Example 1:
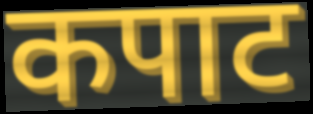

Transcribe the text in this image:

कपाट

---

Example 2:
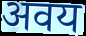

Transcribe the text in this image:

अवय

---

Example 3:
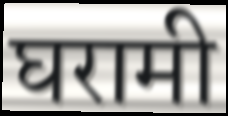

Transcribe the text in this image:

घरामी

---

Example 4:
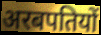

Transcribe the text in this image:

अरबपतियों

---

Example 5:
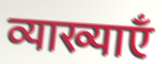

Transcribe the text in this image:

व्याख्याएँ